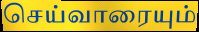
செய்வாரையும்